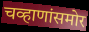
चव्हाणांसमोर